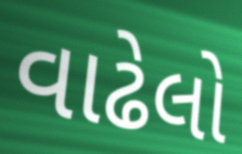
વાઢેલો